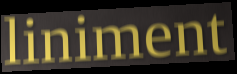
liniment